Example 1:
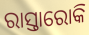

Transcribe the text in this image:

ରାସ୍ତାରୋକି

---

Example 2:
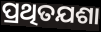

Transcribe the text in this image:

ପ୍ରଥିତଯଶା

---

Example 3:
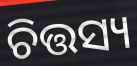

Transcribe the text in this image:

ଚିତ୍ତସ୍ୟ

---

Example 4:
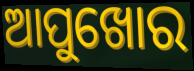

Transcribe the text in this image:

ଆପୁଖୋର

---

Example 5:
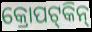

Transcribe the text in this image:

କ୍ରୋପଟ୍‍କିନ୍